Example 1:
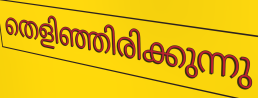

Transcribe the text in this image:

തെളിഞ്ഞിരിക്കുന്നു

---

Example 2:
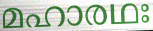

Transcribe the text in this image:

മഹാരഥഃ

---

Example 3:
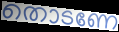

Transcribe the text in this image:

തൊടണേ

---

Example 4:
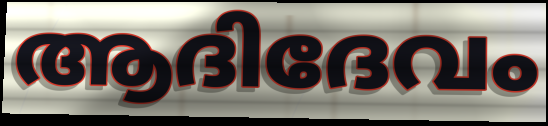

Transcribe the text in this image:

ആദിദേവം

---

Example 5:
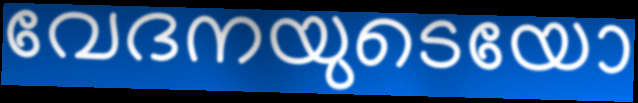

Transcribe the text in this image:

വേദനയുടെയോ